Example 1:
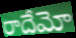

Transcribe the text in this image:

రాదేమో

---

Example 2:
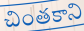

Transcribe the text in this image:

చింతకాని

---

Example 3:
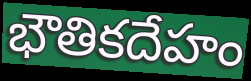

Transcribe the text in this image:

భౌతికదేహం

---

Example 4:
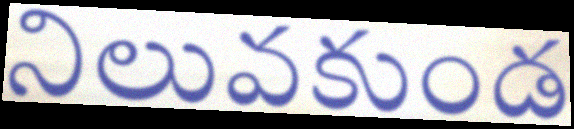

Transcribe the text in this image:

నిలువకుండ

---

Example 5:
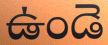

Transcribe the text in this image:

ఉండె